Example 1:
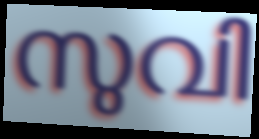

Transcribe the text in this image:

സുവി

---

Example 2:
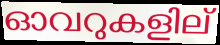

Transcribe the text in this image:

ഓവറുകളില്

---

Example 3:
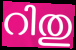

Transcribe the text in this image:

റിതു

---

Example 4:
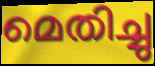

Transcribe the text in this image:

മെതിച്ചു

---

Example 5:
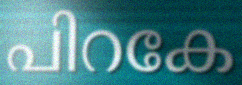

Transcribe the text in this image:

പിറകേ